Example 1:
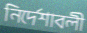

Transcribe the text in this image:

নির্দেশাবলী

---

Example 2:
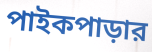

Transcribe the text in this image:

পাইকপাড়ার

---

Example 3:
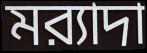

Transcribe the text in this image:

মর‍্যাদা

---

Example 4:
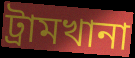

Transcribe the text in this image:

ট্রামখানা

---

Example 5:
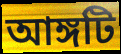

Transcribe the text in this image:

আঙ্গটি